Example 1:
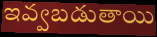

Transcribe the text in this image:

ఇవ్వబడుతాయి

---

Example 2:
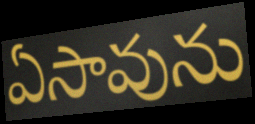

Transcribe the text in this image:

ఏసావును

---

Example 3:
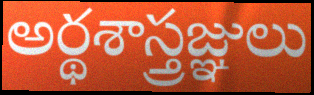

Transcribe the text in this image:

అర్థశాస్త్రజ్ఞులు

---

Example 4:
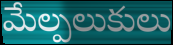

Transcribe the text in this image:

మేల్పలుకులు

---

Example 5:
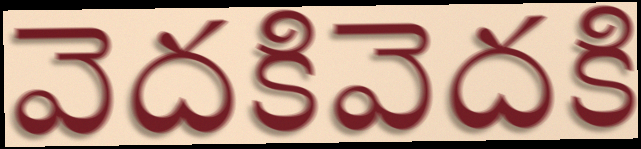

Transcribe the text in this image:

వెదకివెదకి